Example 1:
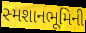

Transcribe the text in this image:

સ્મશાનભૂમિની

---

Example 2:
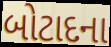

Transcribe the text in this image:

બોટાદના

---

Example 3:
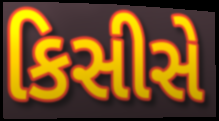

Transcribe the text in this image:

કિસીસે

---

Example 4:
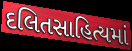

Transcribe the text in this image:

દલિતસાહિત્યમાં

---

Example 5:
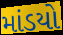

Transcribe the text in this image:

માંડયો